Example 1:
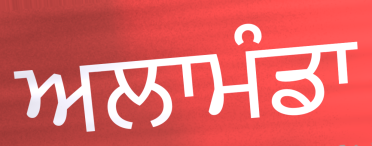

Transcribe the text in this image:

ਅਲਾਮੰਡਾ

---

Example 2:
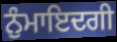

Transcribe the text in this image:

ਨੁੰਮਾਇਦਗੀ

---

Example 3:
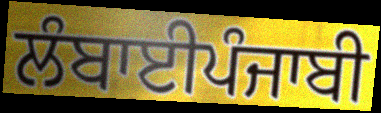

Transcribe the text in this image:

ਲੰਬਾਈਪੰਜਾਬੀ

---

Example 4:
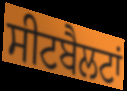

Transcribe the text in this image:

ਸੀਟਬੈਲਟਾਂ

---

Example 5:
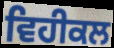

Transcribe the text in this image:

ਵਿਹੀਕਲ